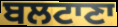
ਬਲਟਾਣਾ